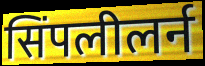
सिंपलीलर्न